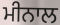
ਮੀਨਾਲ